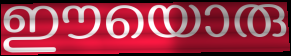
ഈയൊരു